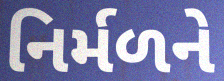
નિર્મળને